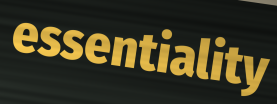
essentiality